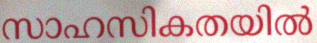
സാഹസികതയിൽ